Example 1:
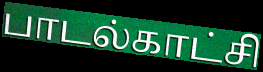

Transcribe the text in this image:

பாடல்காட்சி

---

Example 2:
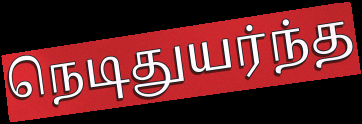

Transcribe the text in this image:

நெடிதுயர்ந்த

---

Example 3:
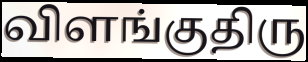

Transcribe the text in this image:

விளங்குதிரு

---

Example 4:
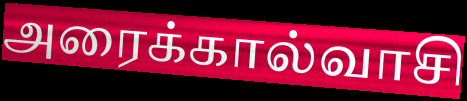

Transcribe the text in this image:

அரைக்கால்வாசி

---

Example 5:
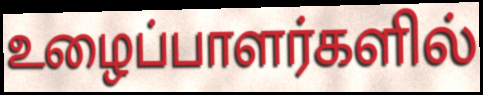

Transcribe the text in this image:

உழைப்பாளர்களில்